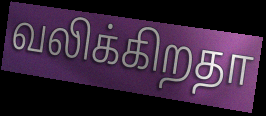
வலிக்கிறதா